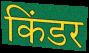
किंडर